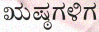
ಋಷ್ಠಗಳಿಗ